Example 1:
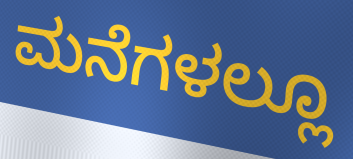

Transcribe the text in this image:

ಮನೆಗಳಲ್ಲೂ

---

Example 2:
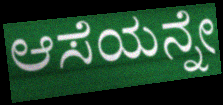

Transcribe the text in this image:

ಆಸೆಯನ್ನೇ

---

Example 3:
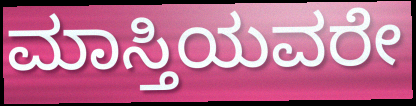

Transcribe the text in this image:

ಮಾಸ್ತಿಯವರೇ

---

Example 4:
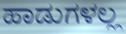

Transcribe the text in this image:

ಹಾಡುಗಳಲ್ಲ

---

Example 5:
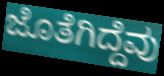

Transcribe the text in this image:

ಜೊತೆಗಿದ್ದೆವು